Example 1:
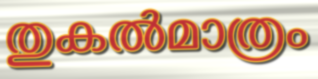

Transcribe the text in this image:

തുകൽമാത്രം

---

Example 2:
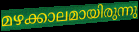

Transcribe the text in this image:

മഴക്കാലമായിരുന്നു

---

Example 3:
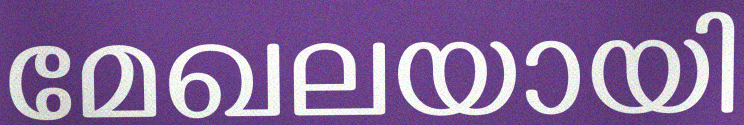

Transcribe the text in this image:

മേഖലയായി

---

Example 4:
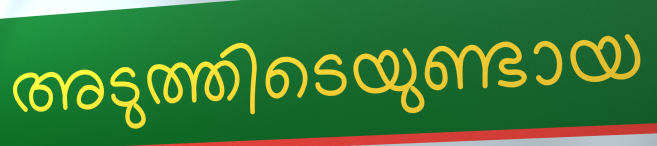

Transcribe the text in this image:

അടുത്തിടെയുണ്ടായ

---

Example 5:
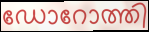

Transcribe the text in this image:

ഡോറോത്തി